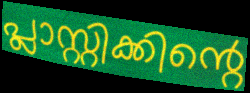
പ്ലാസ്റ്റിക്കിന്റെ